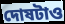
দোষটাও